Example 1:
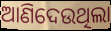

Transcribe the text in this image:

ଆଣିଦେଉଥିଲା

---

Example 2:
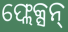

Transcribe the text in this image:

ଫ୍ଲେକ୍ସନ୍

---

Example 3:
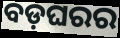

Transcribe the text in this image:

ବଡ଼ଘରର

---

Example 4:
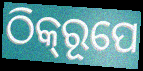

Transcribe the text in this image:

ଠିକ୍‍ରୂପେ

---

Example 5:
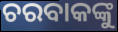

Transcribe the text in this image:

ଚରବାକଙ୍କୁ